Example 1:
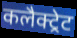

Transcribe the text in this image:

कलैक्ट्रेट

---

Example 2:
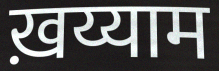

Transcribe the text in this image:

ख़य्याम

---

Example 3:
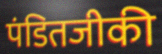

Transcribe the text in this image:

पंडितजीकी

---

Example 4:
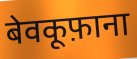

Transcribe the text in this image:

बेवकूफ़ाना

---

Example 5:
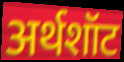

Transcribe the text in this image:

अर्थशॉट